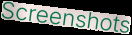
Screenshots